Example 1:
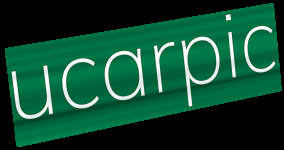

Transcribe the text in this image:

ucarpic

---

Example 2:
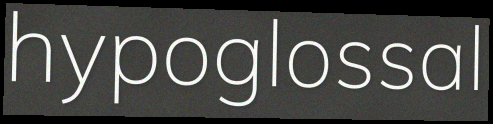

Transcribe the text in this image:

hypoglossal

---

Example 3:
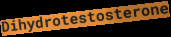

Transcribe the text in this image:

Dihydrotestosterone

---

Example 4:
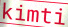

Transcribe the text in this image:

kimti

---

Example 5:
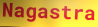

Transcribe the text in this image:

Nagastra